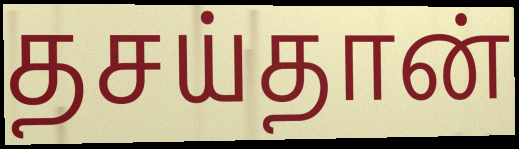
தசய்தான்